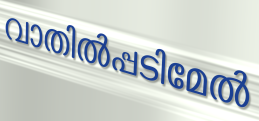
വാതിൽപ്പടിമേൽ